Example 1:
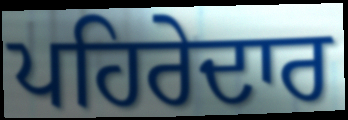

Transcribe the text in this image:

ਪਹਿਰੇਦਾਰ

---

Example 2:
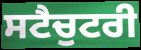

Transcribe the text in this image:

ਸਟੈਚੁਟਰੀ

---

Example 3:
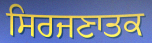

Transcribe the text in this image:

ਸਿਰਜਣਾਤਕ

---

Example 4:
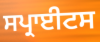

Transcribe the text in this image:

ਸਪ੍ਰਾਈਟਸ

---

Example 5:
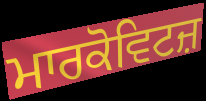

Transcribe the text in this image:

ਮਾਰਕੋਵਿਟਜ਼